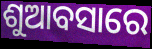
ଶୁଆବସାରେ